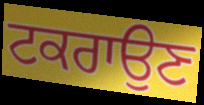
ਟਕਰਾਉਣ